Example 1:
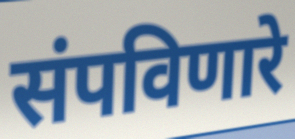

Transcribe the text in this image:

संपविणारे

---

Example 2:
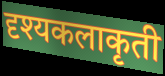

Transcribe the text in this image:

दृश्यकलाकृती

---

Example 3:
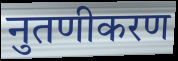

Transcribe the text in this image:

नुतणीकरण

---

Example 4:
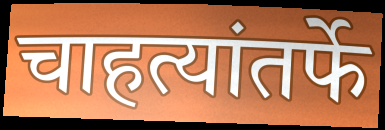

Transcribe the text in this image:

चाहत्यांतर्फे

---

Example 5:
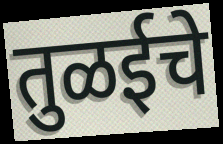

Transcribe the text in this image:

तुळईचे